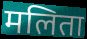
मलिता